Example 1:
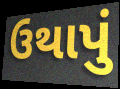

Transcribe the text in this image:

ઉથાપું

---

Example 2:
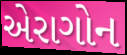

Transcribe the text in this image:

એરાગોન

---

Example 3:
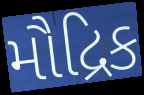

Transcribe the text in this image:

મૌદ્રિક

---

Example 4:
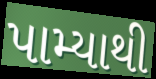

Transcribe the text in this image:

પામ્યાથી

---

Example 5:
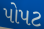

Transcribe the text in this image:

પોપટ